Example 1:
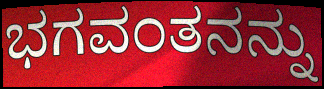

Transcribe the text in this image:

ಭಗವಂತನನ್ನು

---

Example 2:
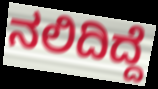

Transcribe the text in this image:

ನಲಿದಿದ್ದೆ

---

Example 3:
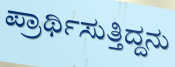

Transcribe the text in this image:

ಪ್ರಾರ್ಥಿಸುತ್ತಿದ್ದನು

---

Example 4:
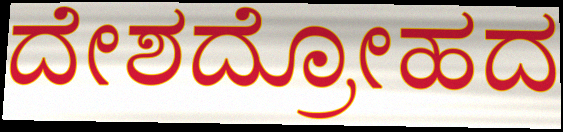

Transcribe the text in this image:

ದೇಶದ್ರೋಹದ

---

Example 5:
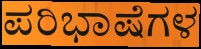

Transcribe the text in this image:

ಪರಿಭಾಷೆಗಳ